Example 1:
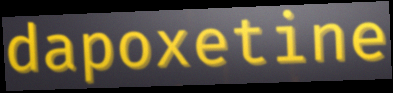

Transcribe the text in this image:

dapoxetine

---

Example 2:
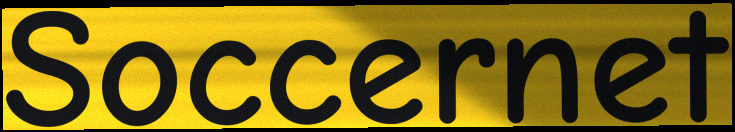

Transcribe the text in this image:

Soccernet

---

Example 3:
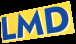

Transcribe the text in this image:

LMD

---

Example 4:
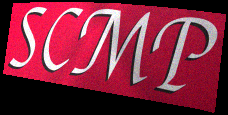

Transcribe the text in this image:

SCMP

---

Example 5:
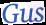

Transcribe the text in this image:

Gus